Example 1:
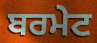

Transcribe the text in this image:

ਬਰਮੇਟ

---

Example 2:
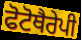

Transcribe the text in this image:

ਫੋਟੋਥੈਰੇਪੀ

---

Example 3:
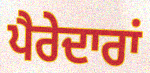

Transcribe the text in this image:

ਪੈਰੇਦਾਰਾਂ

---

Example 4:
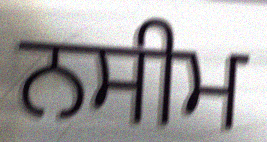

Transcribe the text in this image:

ਨਸੀਮ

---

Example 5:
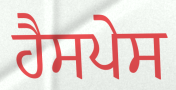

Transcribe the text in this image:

ਹੈਸਪੇਸ